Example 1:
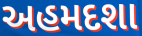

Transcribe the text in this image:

અહમદશા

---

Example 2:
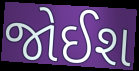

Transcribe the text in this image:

જોઈશ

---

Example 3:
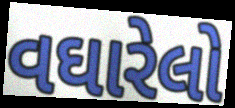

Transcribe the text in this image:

વઘારેલો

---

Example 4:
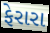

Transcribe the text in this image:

ફેરારા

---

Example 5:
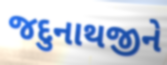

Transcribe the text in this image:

જદુનાથજીને